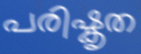
പരിഷ്കൃത